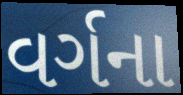
વર્ગના